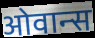
ओवान्स